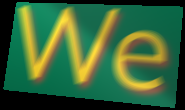
We